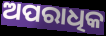
ଅପରାଧିକ